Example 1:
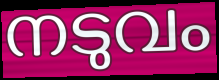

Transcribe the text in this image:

നടുവം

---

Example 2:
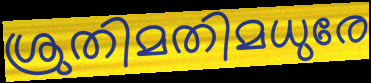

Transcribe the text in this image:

ശ്രുതിമതിമധുരേ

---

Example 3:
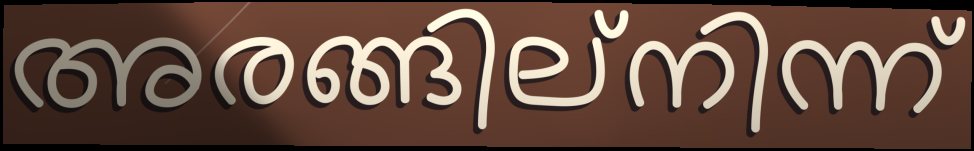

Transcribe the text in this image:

അരങ്ങില്നിന്ന്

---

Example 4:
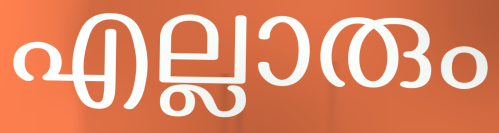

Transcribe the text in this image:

എല്ലാരും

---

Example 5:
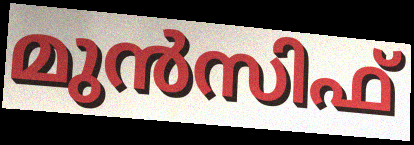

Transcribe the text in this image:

മുൻസിഫ്